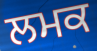
ਲਮਕ